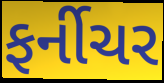
ફર્નીચર